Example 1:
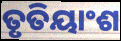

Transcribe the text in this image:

ତୃତିୟାଂଶ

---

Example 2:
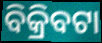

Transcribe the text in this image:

ବିକ୍ରିବଟା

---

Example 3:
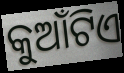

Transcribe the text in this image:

କୁଆଁଟିଏ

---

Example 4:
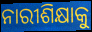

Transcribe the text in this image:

ନାରୀଶିକ୍ଷାକୁ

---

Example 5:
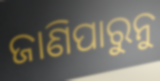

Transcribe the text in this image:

ଜାଣିପାରୁନୁ